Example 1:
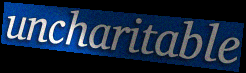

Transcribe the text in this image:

uncharitable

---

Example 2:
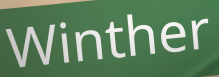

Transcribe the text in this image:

Winther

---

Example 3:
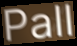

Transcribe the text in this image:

Pall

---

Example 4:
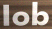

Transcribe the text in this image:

Iob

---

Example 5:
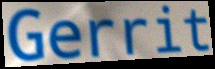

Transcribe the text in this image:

Gerrit